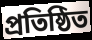
প্রতিষ্ঠিত